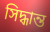
সিদ্ধান্ত